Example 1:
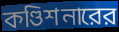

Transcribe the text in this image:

কণ্ডিশনারের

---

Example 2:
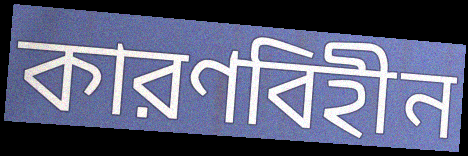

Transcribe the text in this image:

কারণবিহীন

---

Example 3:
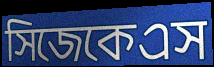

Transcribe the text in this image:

সিজেকেএস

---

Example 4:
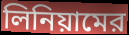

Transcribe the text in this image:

লিনিয়ামের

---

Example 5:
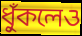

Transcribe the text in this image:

ধুঁকলেও